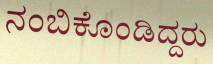
ನಂಬಿಕೊಂಡಿದ್ದರು